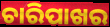
ଚାରିପାଖର